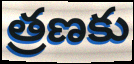
త్రణకు